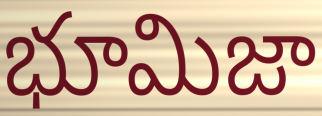
భూమిజా